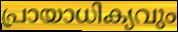
പ്രായാധിക്യവും